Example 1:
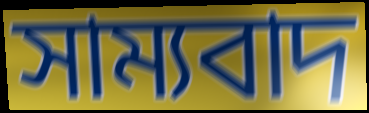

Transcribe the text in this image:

সাম্যবাদ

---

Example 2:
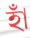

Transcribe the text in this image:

হাঁ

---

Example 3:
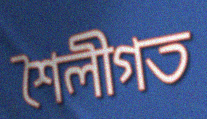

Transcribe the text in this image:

শৈলীগত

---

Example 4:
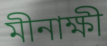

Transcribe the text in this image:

মীনাক্ষী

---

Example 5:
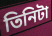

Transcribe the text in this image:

তিনিটা